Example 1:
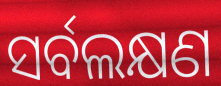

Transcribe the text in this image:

ସର୍ବଲକ୍ଷଣ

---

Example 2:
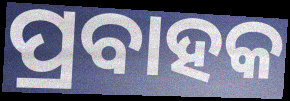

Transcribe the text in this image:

ପ୍ରବାହକ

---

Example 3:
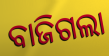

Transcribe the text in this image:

ବାଜିଗଲା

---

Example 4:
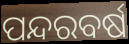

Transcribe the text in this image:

ପନ୍ଦରବର୍ଷ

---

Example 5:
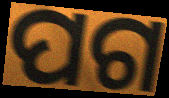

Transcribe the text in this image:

ପଗ